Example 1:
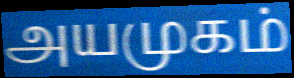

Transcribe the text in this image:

அயமுகம்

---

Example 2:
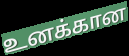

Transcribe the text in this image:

உனக்கான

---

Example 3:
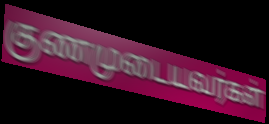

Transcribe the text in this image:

குணமுடையவர்கள்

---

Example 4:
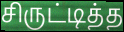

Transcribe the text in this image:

சிருட்டித்த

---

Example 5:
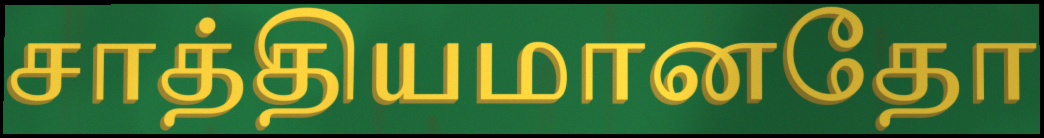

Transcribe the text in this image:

சாத்தியமானதோ